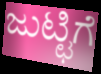
ಜುಟ್ಟಿಗೆ